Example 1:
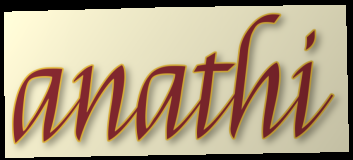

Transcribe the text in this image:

anathi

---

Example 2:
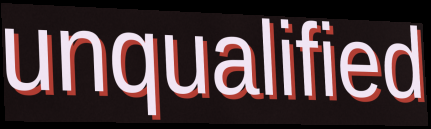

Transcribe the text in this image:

unqualified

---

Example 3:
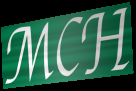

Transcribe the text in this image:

MCH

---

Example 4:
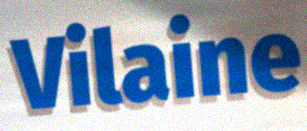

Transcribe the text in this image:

Vilaine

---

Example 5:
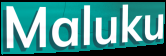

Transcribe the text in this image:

Maluku